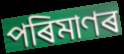
পৰিমাণৰ